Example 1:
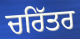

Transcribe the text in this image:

ਚਰਿੱਤਰ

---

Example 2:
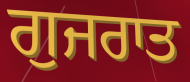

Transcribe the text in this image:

ਗੁਜਰਾਤ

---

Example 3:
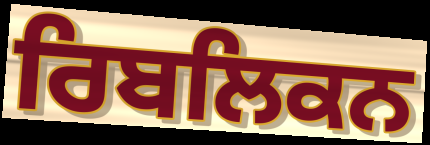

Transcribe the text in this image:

ਰਿਬਲਿਕਨ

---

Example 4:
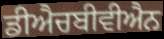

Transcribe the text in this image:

ਡੀਐਚਬੀਵੀਐਨ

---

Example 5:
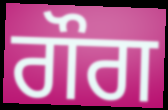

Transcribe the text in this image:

ਗੌਗ